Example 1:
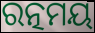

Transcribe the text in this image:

ରତ୍ନମୟ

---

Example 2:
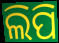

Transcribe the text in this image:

ଲିପି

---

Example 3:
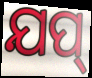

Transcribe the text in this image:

ଯପ୍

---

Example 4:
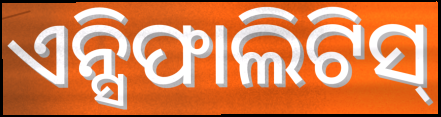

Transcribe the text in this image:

ଏନ୍ସିଫାଲିଟିସ୍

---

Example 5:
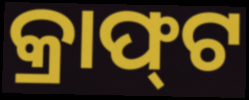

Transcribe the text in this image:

କ୍ରାଫ୍‌ଟ